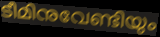
ടീമിനുവേണ്ടിയും